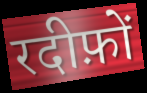
रदीफ़ों